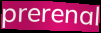
prerenal